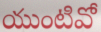
యుంటివో